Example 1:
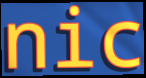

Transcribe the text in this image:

nic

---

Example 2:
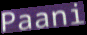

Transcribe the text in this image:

Paani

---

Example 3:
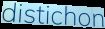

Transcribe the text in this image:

distichon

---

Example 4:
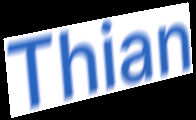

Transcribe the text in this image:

Thian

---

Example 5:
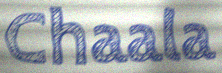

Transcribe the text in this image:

Chaala